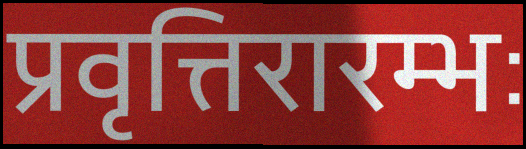
प्रवृत्तिरारम्भः